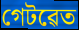
গেটৱেত